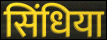
सिंधिया